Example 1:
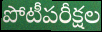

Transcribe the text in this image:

పోటీపరీక్షల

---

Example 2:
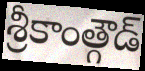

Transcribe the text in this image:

శ్రీకాంత్గౌడ్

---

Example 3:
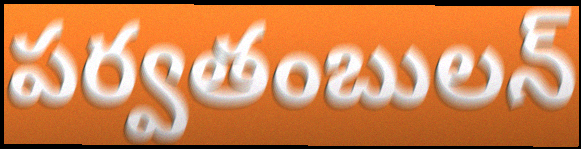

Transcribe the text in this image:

పర్వతంబులన్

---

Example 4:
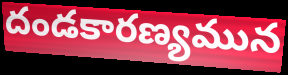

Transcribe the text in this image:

దండకారణ్యమున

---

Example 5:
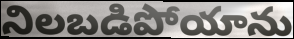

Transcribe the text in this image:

నిలబడిపోయాను